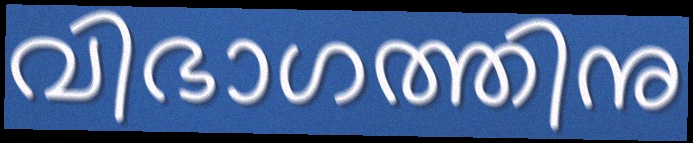
വിഭാഗത്തിനു